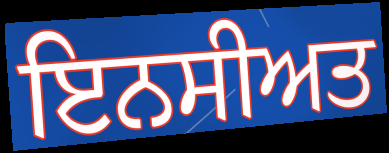
ਇਨਸੀਅਤ